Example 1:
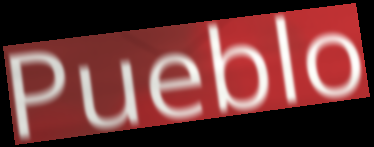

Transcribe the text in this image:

Pueblo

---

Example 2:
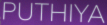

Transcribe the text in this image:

PUTHIYA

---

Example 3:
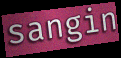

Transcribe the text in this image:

sangin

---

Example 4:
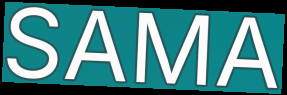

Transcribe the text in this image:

SAMA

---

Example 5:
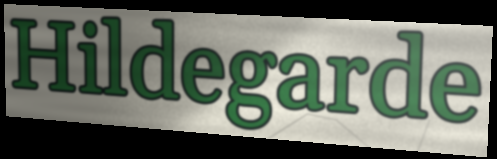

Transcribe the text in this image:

Hildegarde